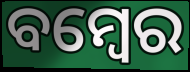
ବମ୍ବେର